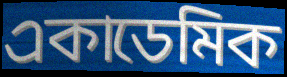
একাডেমিক